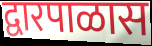
द्वारपाळास